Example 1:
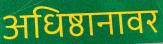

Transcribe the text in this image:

अधिष्ठानावर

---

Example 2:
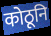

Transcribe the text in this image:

कोठूनि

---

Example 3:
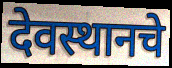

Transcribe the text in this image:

देवस्थानचे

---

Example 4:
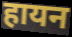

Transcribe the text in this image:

हायन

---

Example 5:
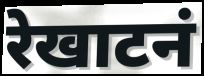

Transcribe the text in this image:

रेखाटनं